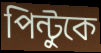
পিন্টুকে